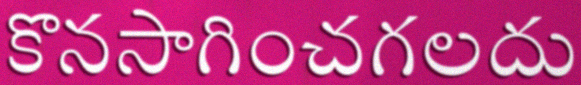
కొనసాగించగలదు